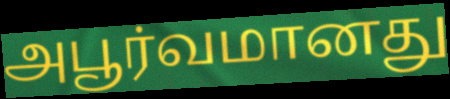
அபூர்வமானது